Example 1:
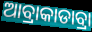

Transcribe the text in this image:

ଆବ୍ରାକାଡାବ୍ରା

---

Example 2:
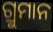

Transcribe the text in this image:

ଗ୍ରୁମାନ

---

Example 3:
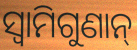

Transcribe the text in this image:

ସ୍ୱାମିଗୁଣାନ୍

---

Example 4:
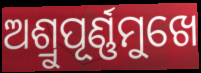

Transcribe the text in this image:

ଅଶ୍ରୁପୂର୍ଣ୍ଣମୁଖେ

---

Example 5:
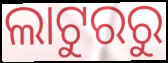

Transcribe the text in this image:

ଲାଟୁରରୁ